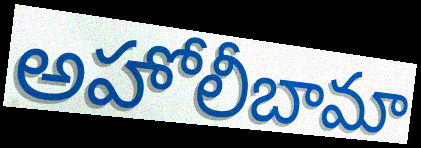
అహోలీబామా